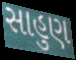
સાહુણ